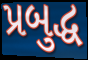
પ્રબુદ્ધ